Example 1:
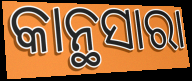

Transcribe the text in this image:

କାନ୍ଥସାରା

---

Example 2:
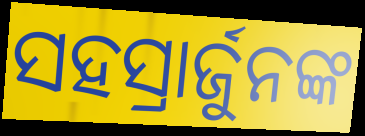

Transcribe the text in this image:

ସହସ୍ରାର୍ଜୁନଙ୍କ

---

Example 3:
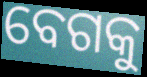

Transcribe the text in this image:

ବେଗକୁ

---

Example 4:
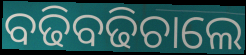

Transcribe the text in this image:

ବଢିବଢିଚାଲେ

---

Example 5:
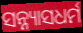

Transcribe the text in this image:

ସନ୍ନ୍ୟାସଧର୍ମ